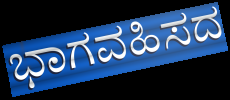
ಭಾಗವಹಿಸದ